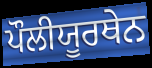
ਪੌਲੀਯੂਰਥੇਨ